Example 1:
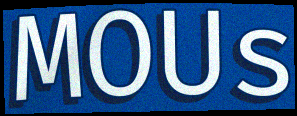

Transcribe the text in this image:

MOUs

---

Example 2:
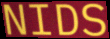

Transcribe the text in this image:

NIDS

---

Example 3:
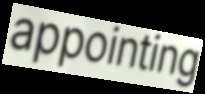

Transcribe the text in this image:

appointing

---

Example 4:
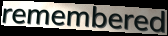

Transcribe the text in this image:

remembered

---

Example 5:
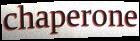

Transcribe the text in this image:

chaperone